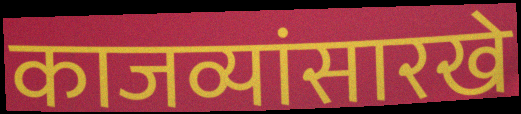
काजव्यांसारखे